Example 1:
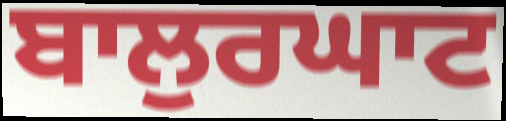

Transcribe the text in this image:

ਬਾਲੁਰਘਾਟ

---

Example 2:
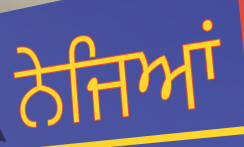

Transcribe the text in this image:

ਨੇਜਿਆਂ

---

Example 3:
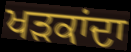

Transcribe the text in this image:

ਖੜਕਾਂਦਾ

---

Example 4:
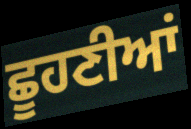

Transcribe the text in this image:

ਛੂਹਣੀਆਂ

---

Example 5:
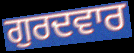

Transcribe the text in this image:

ਗੁਰਦਵਾਰ